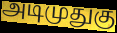
அடிமுதுகு